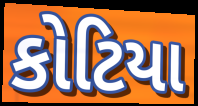
કોટિયા